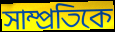
সাম্প্রতিকে